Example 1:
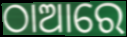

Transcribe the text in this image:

ଠାଆରେ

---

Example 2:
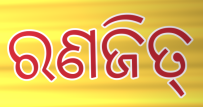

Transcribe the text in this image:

ରଣଜିତ୍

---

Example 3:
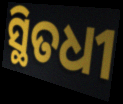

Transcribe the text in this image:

ସ୍ଥିତଧୀ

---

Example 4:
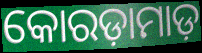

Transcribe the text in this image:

କୋରଡ଼ାମାଡ଼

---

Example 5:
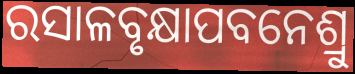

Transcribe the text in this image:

ରସାଳବୃକ୍ଷାପବନେଶ୍ରୁ